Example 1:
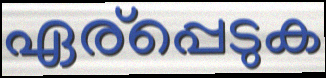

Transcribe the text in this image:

ഏര്പ്പെടുക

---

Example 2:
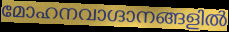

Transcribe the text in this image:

മോഹനവാഗ്ദാനങ്ങളിൽ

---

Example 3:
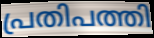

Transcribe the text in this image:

പ്രതിപത്തി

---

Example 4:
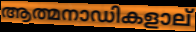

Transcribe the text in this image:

ആത്മനാഡികളാല്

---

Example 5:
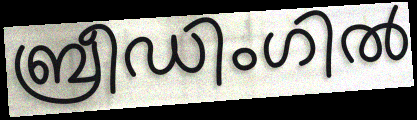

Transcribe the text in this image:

ബ്രീഡിംഗിൽ